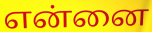
என்னை